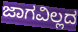
ಜಾಗವಿಲ್ಲದ